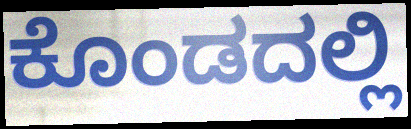
ಕೊಂಡದಲ್ಲಿ